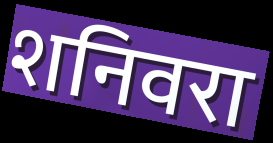
शनिवरा